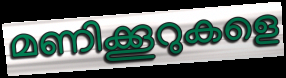
മണിക്കൂറുകളെ